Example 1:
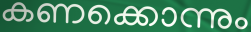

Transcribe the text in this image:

കണക്കൊന്നും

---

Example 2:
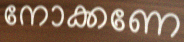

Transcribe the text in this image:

നോക്കണേ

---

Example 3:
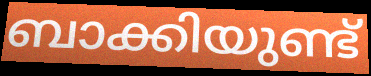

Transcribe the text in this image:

ബാക്കിയുണ്ട്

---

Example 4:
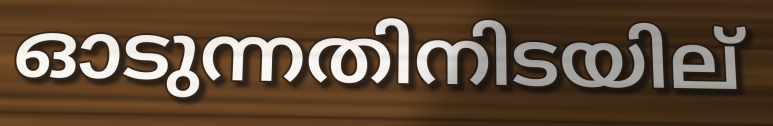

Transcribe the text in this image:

ഓടുന്നതിനിടയില്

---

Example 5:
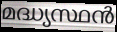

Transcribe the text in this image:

മദ്ധ്യസ്ഥൻ